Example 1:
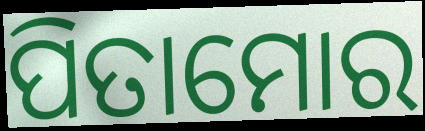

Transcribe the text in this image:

ପିତାମୋର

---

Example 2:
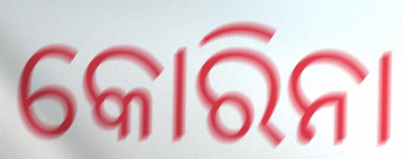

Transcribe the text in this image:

କୋରିନା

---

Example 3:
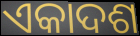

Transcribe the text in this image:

ଏକାଦଶ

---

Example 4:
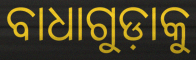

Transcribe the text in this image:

ବାଧାଗୁଡ଼ାକୁ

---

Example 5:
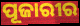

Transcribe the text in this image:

ପୂଜାରୀର